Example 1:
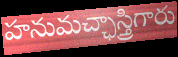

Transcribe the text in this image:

హనుమచ్ఛాస్త్రిగారు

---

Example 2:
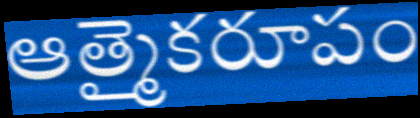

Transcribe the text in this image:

ఆత్మైకరూపం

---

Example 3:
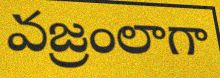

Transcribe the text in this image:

వజ్రంలాగా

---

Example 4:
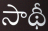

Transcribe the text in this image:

సాథీ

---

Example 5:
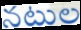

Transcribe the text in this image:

నటుల